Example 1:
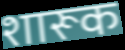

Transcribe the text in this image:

शारूक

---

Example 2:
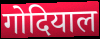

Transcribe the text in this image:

गोदियाल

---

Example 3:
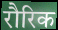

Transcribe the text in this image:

रौरिक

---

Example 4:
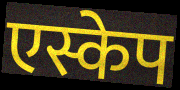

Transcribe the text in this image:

एस्केप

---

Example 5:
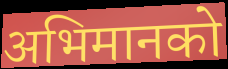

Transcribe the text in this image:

अभिमानको